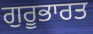
ਗੁਰੂਭਾਰਤ